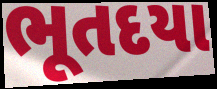
ભૂતદયા